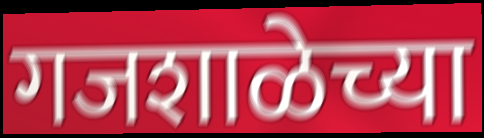
गजशाळेच्या